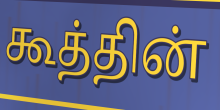
கூத்தின்